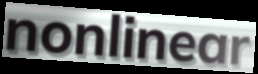
nonlinear